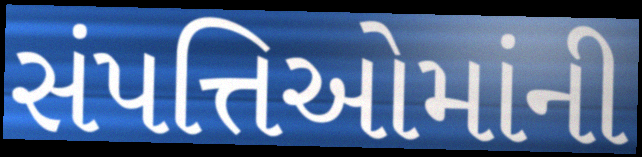
સંપત્તિઓમાંની